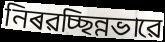
নিৰৱচ্ছিন্নভাৱে